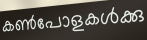
കൺപോളകൾക്കു